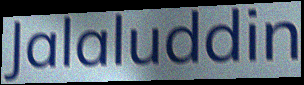
Jalaluddin